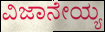
ವಿಜಾನೇಯ್ಯ